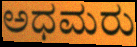
ಅಧಮರು